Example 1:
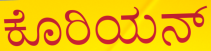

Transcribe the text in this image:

ಕೊರಿಯನ್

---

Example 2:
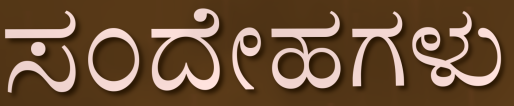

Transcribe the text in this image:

ಸಂದೇಹಗಳು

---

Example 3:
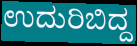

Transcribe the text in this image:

ಉದುರಿಬಿದ್ದ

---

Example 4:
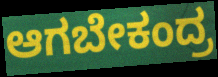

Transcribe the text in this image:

ಆಗಬೇಕಂದ್ರ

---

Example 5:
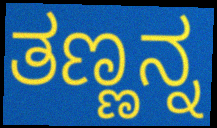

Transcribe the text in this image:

ತಣ್ಣನ್ನ